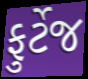
ફુર્ટેજ